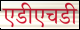
एडीएचडी